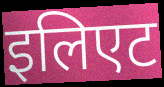
इलिएट